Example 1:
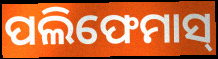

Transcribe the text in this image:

ପଲିଫେମାସ୍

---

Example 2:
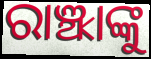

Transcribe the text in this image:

ରାଞ୍ଝାଙ୍କୁ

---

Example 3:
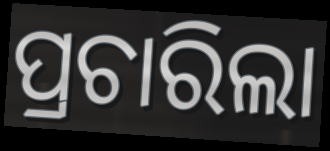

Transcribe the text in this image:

ପ୍ରଚାରିଲା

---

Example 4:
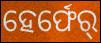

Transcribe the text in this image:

ହେର୍ଫେର୍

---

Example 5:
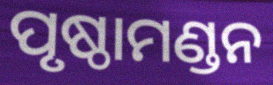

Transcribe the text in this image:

ପୃଷ୍ଠାମଣ୍ଡନ